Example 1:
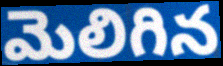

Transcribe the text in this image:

మెలిగిన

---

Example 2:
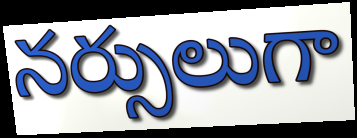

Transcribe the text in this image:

నర్సులుగా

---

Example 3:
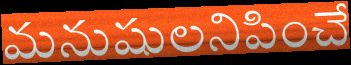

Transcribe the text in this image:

మనుషులనిపించే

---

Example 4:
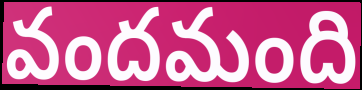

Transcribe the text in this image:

వందమంది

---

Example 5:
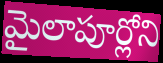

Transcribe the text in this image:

మైలాపూర్లోని